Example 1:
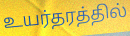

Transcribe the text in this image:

உயர்தரத்தில்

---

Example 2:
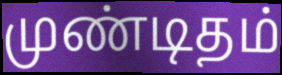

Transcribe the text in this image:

முண்டிதம்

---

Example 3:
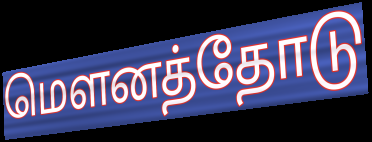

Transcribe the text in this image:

மௌனத்தோடு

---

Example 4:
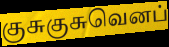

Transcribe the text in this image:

குசுகுசுவெனப்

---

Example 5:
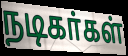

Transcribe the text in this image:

நடிகர்கள்